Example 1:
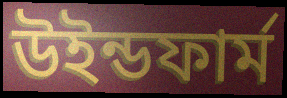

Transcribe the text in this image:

উইন্ডফার্ম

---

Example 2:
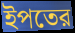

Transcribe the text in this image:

ইপতের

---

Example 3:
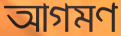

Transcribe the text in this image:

আগমণ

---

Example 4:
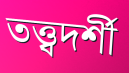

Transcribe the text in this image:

তত্ত্বদর্শী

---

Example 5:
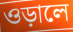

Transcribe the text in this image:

ওড়ালে